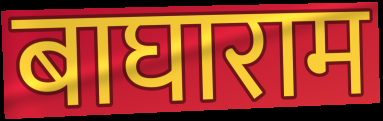
बाघाराम